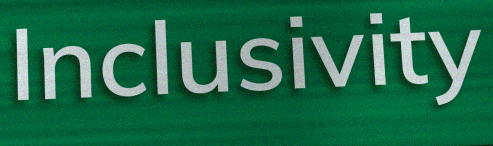
Inclusivity